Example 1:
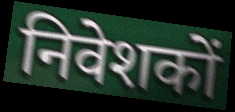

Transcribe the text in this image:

निवेशकों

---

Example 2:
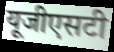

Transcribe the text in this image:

यूजीएसटी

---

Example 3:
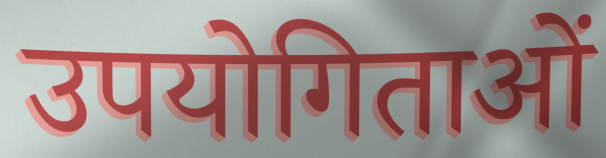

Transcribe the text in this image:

उपयोगिताओं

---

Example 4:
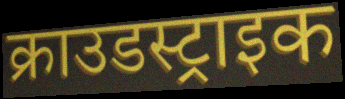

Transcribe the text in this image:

क्राउडस्ट्राइक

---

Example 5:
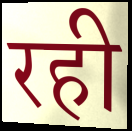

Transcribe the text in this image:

रही